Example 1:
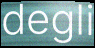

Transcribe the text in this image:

degli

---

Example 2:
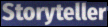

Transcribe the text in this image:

Storyteller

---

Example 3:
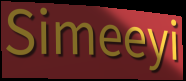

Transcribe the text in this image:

Simeeyi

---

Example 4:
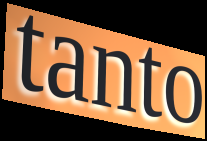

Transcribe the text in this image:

tanto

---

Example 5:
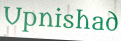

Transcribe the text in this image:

Upnishad